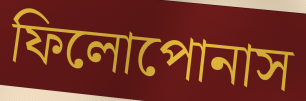
ফিলোপোনাস